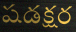
షడక్షర